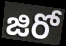
జిరో